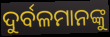
ଦୁର୍ବଳମାନଙ୍କୁ